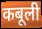
कबूली